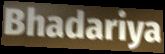
Bhadariya